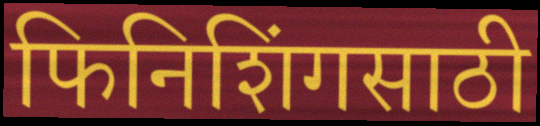
फिनिशिंगसाठी